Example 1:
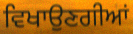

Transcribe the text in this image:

ਵਿਖਾਉਣਗੀਆਂ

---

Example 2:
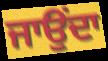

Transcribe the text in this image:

ਜਾਉਂਦਾ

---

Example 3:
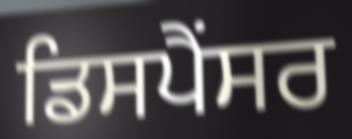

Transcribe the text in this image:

ਡਿਸਪੈਂਸਰ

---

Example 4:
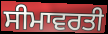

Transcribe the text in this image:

ਸੀਮਾਵਰਤੀ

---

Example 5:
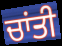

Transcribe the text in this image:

ਚਾਂਤੀ